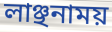
লাঞ্ছনাময়